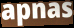
apnas